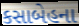
કસાબેહના